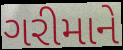
ગરીમાને